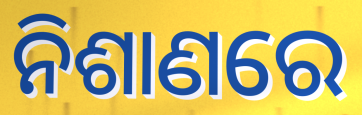
ନିଶାଣରେ